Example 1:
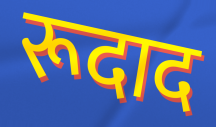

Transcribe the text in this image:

रूदाद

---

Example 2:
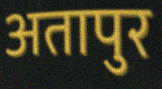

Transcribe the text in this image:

अतापुर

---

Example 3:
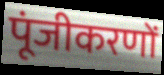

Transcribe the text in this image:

पूंजीकरणों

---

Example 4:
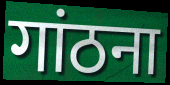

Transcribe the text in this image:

गांठना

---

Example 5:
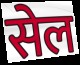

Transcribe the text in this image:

सेल